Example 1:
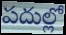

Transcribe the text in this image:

పదుల్లో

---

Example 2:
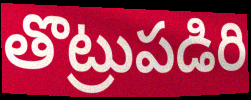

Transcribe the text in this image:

తొట్రుపడిరి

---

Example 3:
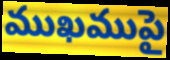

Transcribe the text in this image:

ముఖముపై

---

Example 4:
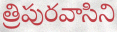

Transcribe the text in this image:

త్రిపురవాసిని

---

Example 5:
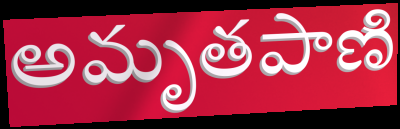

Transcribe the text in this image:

అమృతపాణి